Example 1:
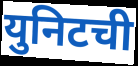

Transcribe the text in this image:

युनिटची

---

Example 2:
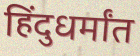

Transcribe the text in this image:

हिंदुधर्मांत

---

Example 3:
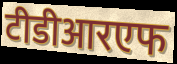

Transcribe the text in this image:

टीडीआरएफ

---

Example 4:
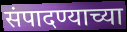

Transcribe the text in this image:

संपादण्याच्या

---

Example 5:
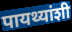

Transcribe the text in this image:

पायथ्यांशी